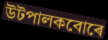
উটপালকবোৰে